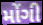
મોંગી